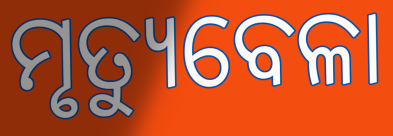
ମୃତ୍ୟୁବେଳା